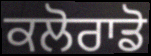
ਕਲੋਰਾਡੋ